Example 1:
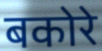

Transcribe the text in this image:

बकोरे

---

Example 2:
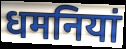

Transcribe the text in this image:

धमनियां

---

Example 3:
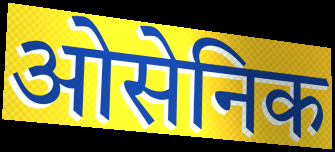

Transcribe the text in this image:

ओसेनिक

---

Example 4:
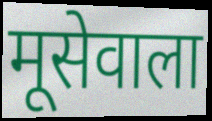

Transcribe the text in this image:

मूसेवाला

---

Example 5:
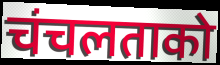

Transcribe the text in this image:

चंचलताको